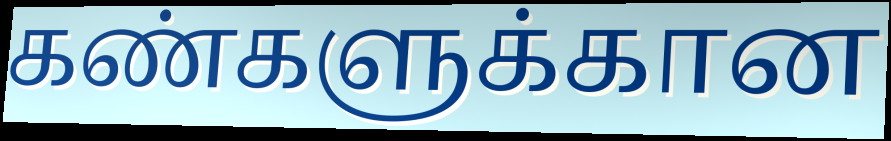
கண்களுக்கான